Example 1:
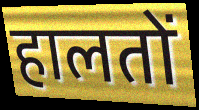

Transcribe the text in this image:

हालतों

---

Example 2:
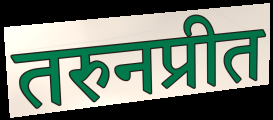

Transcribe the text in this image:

तरुनप्रीत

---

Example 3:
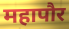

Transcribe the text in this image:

महापौर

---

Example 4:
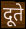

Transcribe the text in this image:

दूते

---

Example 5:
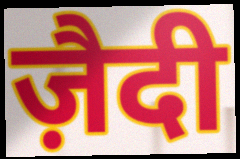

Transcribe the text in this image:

ज़ैदी